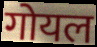
गोयल